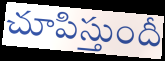
చూపిస్తుందీ